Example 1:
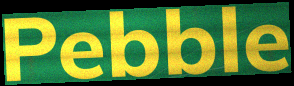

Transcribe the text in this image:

Pebble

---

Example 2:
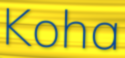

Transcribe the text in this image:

Koha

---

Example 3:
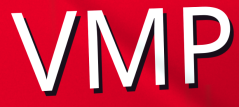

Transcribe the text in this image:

VMP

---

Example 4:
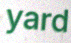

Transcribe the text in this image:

yard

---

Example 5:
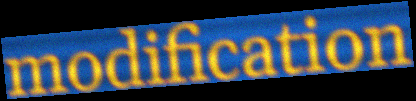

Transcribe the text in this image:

modification